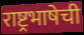
राष्ट्रभाषेची